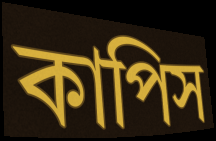
কাপিস